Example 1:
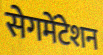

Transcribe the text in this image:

सेगमेंटेशन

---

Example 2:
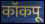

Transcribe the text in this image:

कॉकपू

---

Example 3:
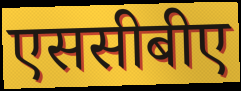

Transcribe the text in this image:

एससीबीए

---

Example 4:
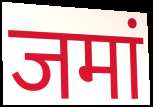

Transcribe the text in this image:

जमां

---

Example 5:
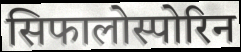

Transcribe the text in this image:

सिफालोस्पोरिन